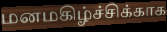
மனமகிழ்ச்சிக்காக